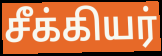
சீக்கியர்